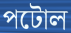
পটোল